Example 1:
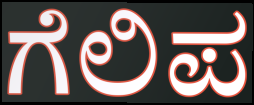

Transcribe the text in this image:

ಗೆಲಿಪ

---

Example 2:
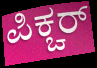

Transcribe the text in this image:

ಪಿಕ್ಚರ್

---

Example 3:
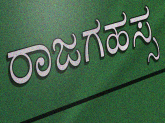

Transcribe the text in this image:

ರಾಜಗಹಸ್ಸ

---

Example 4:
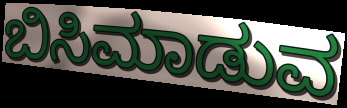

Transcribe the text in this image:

ಬಿಸಿಮಾಡುವ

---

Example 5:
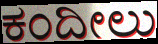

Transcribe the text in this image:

ಕಂದೀಲು